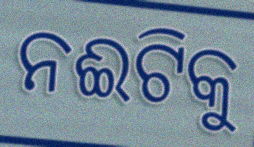
ନଈଟିକୁ